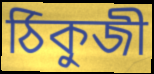
ঠিকুজী